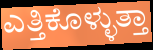
ಎತ್ತಿಕೊಳ್ಳುತ್ತಾ